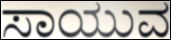
ಸಾಯುವ